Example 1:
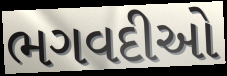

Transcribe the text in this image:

ભગવદીઓ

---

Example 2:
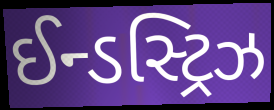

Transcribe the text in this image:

ઈન્ડસ્ટ્રિઝ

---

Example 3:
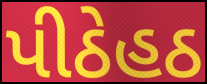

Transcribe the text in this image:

પીઠેહઠ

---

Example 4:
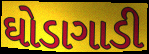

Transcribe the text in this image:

ઘોડાગાડી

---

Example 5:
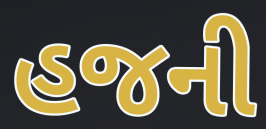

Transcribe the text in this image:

હજની